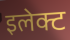
इलेक्ट